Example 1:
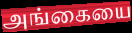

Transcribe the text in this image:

அங்கையை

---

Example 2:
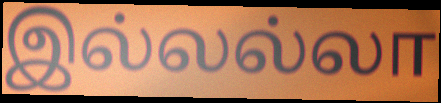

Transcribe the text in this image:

இல்லல்லா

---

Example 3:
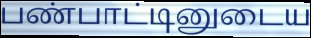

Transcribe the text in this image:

பண்பாட்டினுடைய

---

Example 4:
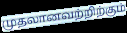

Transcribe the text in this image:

முதலானவற்றிற்கும்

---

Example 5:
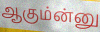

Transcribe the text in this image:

ஆகும்ன்னு